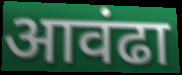
आवंढा